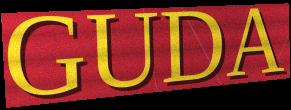
GUDA